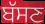
ਬੱਸਣ